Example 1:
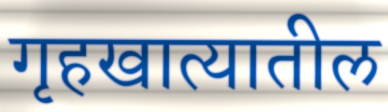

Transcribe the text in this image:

गृहखात्यातील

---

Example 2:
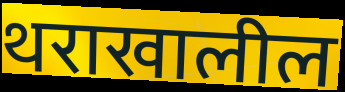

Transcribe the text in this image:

थराखालील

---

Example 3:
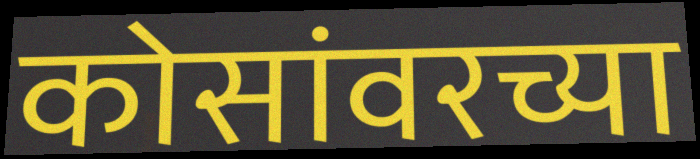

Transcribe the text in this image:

कोसांवरच्या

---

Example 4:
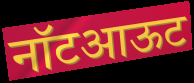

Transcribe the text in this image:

नॉटआऊट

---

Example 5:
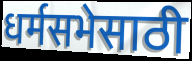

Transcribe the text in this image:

धर्मसभेसाठी